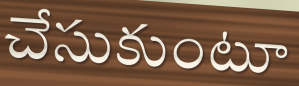
చేసుకుంటూ